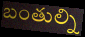
బంతుల్ని